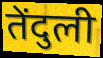
तेंदुली